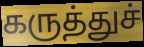
கருத்துச்